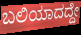
ಬಲಿಯಾದದ್ದೇ